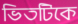
ভিতটিকে